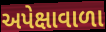
અપેક્ષાવાળા